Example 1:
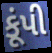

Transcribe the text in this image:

કૂંપી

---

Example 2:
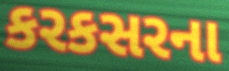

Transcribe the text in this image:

કરકસરના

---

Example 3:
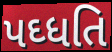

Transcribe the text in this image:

પઘ્ધતિ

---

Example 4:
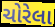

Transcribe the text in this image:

ચોરેલા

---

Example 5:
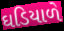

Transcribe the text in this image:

ઘડિયાળે